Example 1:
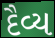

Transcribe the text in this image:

દૈવ્ય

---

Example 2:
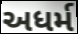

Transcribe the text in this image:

અધર્મ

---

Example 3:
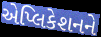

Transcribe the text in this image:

એપ્લિકેશનને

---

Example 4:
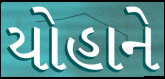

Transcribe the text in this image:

યોહાને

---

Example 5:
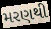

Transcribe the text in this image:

મરણથી